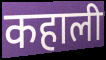
कहाली